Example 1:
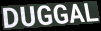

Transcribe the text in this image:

DUGGAL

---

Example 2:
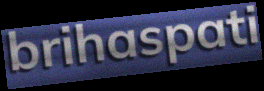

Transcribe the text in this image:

brihaspati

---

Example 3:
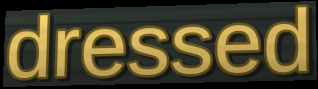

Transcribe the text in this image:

dressed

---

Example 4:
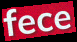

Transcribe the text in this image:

fece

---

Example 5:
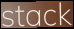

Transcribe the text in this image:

stack